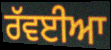
ਰੱਵਈਆ